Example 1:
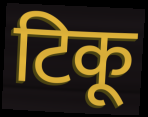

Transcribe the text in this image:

टिकू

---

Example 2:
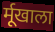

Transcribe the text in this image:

र्मूखाला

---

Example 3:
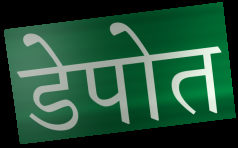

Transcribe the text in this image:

डेपोत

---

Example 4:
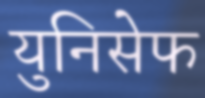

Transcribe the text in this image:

युनिसेफ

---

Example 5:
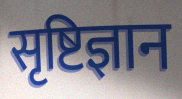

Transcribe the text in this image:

सृष्टिज्ञान